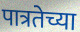
पात्रतेच्या